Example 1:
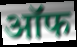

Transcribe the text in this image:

ऑफ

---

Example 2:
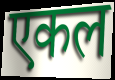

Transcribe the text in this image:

एकल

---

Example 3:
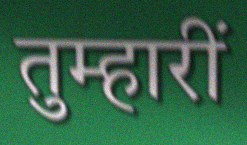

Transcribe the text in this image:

तुम्हारीं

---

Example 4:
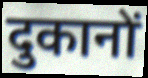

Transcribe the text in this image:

दुकानों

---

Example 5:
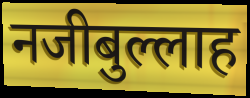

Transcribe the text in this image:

नजीबुल्लाह